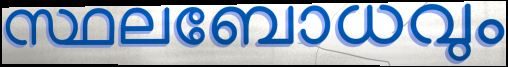
സ്ഥലബോധവും